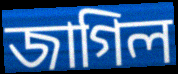
জাগিল